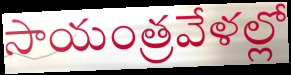
సాయంత్రవేళల్లో